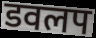
डवलप